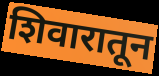
शिवारातून